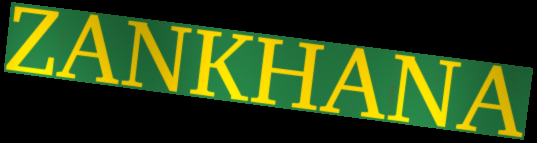
ZANKHANA